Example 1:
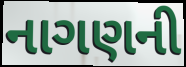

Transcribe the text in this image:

નાગણની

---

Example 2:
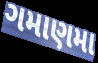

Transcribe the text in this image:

ગમાણમા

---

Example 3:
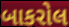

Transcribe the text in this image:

બાકરોલ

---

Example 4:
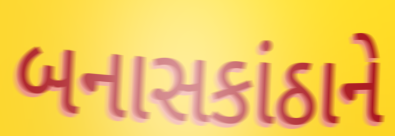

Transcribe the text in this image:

બનાસકાંઠાને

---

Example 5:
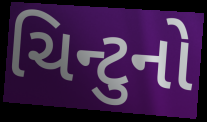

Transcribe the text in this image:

ચિન્ટુનો